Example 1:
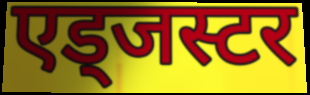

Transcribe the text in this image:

एड्जस्टर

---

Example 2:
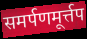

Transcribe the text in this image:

समर्पणमूर्त्तप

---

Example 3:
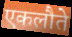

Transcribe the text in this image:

एकलौते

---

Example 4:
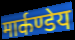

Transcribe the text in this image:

मार्कण्डेय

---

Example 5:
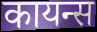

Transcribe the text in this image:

कायन्स